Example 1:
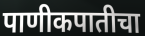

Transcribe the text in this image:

पाणीकपातीचा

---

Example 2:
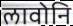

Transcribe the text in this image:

लावोनि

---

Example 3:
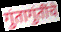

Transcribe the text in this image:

गुंतागुंतींचे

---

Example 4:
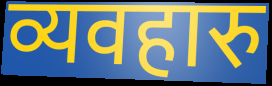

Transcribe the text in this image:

व्यवहारु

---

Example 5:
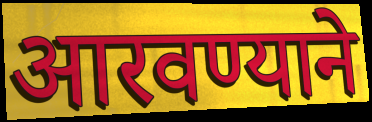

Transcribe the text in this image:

आरवण्याने